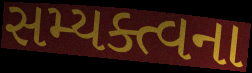
સમ્યક્ત્વના